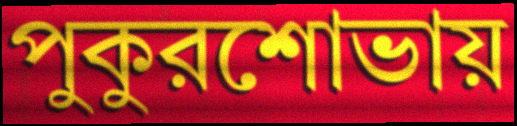
পুকুরশোভায়